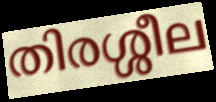
തിരശ്ശീല